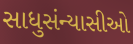
સાધુસંન્યાસીઓ